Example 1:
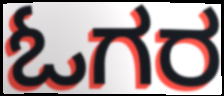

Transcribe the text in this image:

ಓಗರ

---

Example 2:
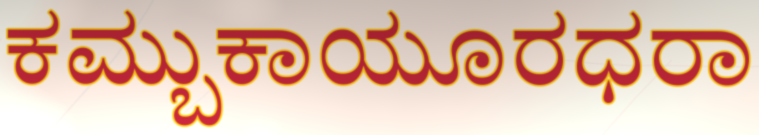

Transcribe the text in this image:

ಕಮ್ಬುಕಾಯೂರಧರಾ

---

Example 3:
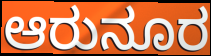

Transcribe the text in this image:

ಆರುನೂರ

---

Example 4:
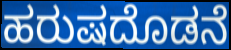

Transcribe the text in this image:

ಹರುಷದೊಡನೆ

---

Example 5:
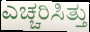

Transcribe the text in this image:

ಎಚ್ಚರಿಸಿತ್ತು